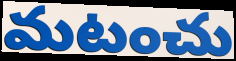
మటంచు